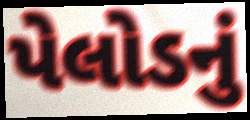
પેલોડનું